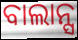
ବାଲାନ୍ସ